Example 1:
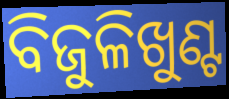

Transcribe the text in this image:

ବିଜୁଳିଖୁଣ୍ଟ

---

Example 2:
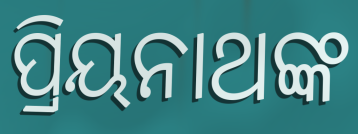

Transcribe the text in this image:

ପ୍ରିୟନାଥଙ୍କ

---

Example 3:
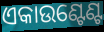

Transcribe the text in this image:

ଏକାଉଣ୍ଟେଣ୍ଟ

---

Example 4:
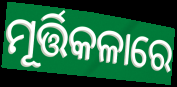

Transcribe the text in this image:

ମୂର୍ତ୍ତିକଳାରେ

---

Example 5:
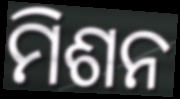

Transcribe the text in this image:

ମିଶନ